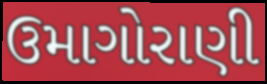
ઉમાગોરાણી